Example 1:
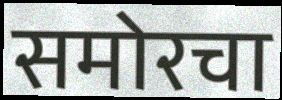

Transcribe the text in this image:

समोरचा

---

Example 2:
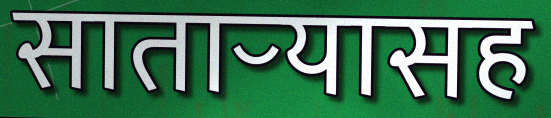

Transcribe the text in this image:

साताऱ्यासह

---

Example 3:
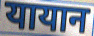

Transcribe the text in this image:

यायान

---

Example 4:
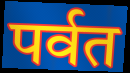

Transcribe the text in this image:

पर्वत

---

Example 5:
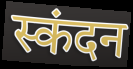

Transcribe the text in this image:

स्कंदन